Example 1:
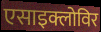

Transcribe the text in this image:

एसाइक्लोविर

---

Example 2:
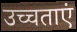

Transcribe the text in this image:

उच्चताएं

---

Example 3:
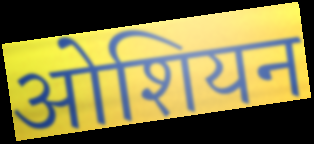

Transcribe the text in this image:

ओशियन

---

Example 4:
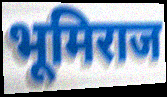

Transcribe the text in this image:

भूमिराज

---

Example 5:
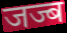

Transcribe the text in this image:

जज्ब